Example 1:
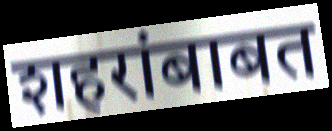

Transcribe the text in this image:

शहरांबाबत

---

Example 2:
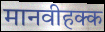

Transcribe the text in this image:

मानवीहक्क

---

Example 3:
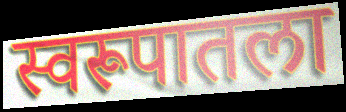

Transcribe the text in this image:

स्वरूपातला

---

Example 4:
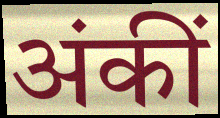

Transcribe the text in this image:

अंकीं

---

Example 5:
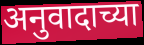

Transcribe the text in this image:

अनुवादाच्या